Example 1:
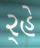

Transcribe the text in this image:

ર્‍હે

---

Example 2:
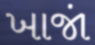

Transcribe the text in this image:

ખાજાં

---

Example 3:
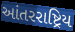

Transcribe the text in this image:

આંતરરાષ્ટ્રિય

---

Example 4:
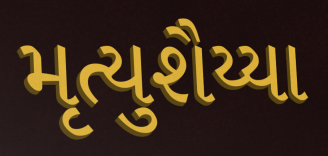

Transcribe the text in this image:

મૃત્યુશૈય્યા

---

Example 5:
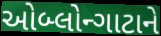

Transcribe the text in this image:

ઓબ્લોન્ગાટાને